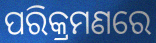
ପରିକ୍ରମଣରେ